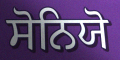
ਸੋਨਿਯੋ